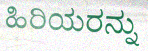
ಹಿರಿಯರನ್ನು